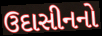
ઉદાસીનનો